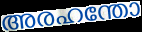
അരഹന്തോ